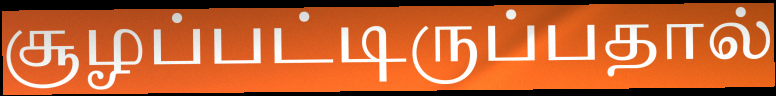
சூழப்பட்டிருப்பதால்